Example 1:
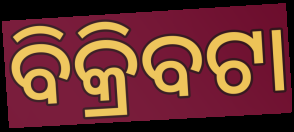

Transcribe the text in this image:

ବିକ୍ରିବଟା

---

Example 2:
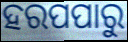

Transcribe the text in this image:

ହରପପାରୁ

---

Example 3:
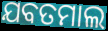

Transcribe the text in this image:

ଯବତମାଲ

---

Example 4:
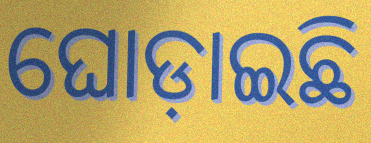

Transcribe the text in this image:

ଘୋଡ଼ାଇଛି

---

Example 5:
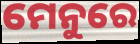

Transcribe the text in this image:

ମେନୁରେ